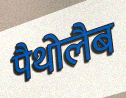
पैथोलैब